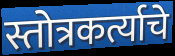
स्तोत्रकर्त्याचे